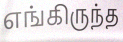
எங்கிருந்த